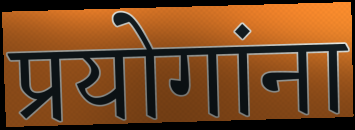
प्रयोगांना